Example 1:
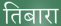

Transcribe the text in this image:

तिबारा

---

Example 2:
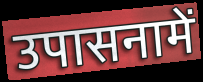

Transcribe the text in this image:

उपासनामें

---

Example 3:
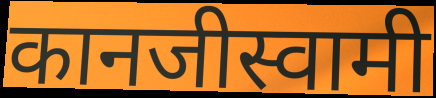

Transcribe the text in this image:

कानजीस्वामी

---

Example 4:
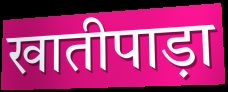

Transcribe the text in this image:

खातीपाड़ा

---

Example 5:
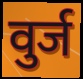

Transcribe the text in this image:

वुर्ज